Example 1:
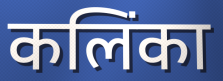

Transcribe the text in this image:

कलिंका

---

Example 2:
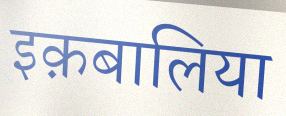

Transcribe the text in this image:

इक़बालिया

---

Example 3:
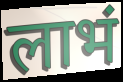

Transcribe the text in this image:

लाभं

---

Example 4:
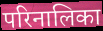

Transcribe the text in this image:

परिनालिका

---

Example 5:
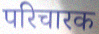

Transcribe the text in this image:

परिचारक